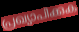
പ്രഖ്യാപിക്കുക